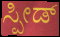
ಸ್ಪೀಡ್